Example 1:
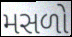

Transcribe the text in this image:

મસળો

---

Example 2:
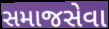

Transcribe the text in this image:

સમાજસેવા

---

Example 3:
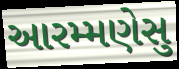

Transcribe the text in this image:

આરમ્મણેસુ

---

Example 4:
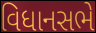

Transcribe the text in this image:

વિધાનસભે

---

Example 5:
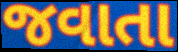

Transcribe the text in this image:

જવાતા